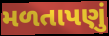
મળતાપણું